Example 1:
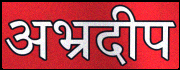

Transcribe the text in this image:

अभ्रदीप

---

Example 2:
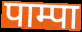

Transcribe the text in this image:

पाम्पा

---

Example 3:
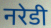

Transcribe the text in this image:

नरेडी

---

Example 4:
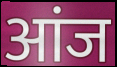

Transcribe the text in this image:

आंज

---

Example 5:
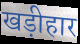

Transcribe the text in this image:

खड़ीहार